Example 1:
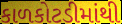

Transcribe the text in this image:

કાળકોટડીમાંથી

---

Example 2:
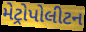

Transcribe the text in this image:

મેટ્રોપોલીટન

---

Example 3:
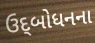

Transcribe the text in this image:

ઉદ્‌બોધનના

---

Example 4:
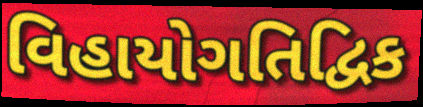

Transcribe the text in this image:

વિહાયોગતિદ્વિક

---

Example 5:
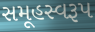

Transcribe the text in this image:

સમૂહસ્વરૂપ